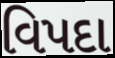
વિપદા